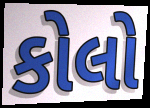
કોલો